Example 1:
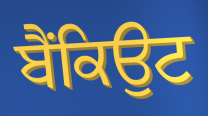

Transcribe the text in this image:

ਬੈਂਕਿਉਟ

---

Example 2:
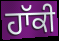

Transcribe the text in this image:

ਹਾੱਕੀ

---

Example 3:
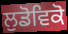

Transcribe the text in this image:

ਲੁਡੋਵਿਕੋ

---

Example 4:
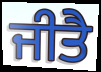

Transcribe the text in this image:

ਜੀਤੈ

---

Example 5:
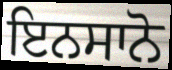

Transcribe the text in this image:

ਇਨਸਾਨੋ